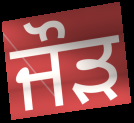
ਜੌੜ